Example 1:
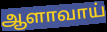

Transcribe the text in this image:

ஆளாவாய்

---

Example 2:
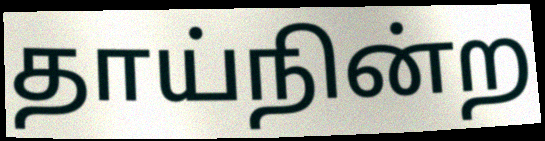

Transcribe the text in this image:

தாய்நின்ற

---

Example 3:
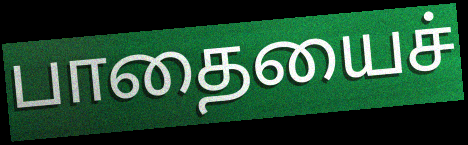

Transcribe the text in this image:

பாதையைச்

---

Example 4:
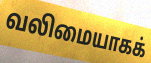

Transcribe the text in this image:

வலிமையாகக்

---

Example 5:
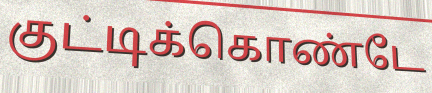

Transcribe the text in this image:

குட்டிக்கொண்டே